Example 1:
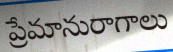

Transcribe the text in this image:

ప్రేమానురాగాలు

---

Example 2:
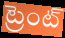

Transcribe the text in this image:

ట్రెంట్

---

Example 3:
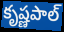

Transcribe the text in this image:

కృష్ణపాల్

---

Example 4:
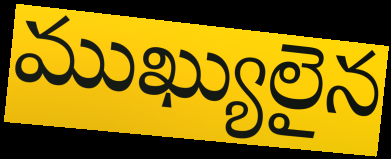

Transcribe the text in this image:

ముఖ్యులైన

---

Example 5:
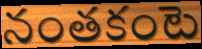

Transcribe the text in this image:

నంతకంటె